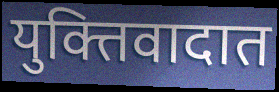
युक्तिवादात